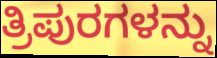
ತ್ರಿಪುರಗಳನ್ನು